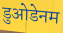
डुओडेनम